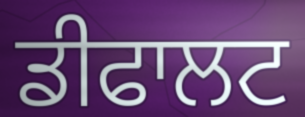
ਡੀਫਾਲਟ